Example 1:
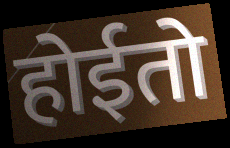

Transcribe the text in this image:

होईतो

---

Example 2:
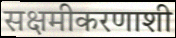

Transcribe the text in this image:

सक्षमीकरणाशी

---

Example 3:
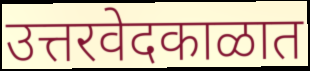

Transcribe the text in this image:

उत्तरवेदकाळात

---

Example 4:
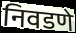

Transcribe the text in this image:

निवडणे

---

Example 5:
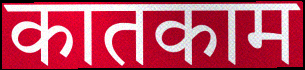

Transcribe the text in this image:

कातकाम